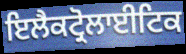
ਇਲੈਕਟ੍ਰੋਲਾਈਟਿਕ